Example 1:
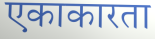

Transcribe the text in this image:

एकाकारता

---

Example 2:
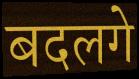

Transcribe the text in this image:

बदलगे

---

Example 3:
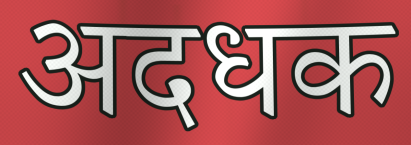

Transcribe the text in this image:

अदधक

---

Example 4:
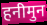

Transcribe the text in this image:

हनीमुन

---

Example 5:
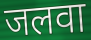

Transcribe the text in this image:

जलवा